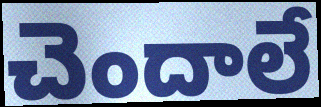
చెందాలే